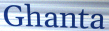
Ghanta